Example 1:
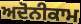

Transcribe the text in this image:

ਅਦੋਨੀਕਾਮ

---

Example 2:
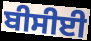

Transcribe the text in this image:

ਬੀਸੀਈ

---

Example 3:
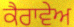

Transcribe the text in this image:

ਕੈਰਾਵੇਅ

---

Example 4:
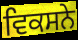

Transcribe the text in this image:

ਵਿਕਸਨੇ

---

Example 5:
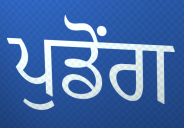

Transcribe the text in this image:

ਪੁਡੋਂਗ